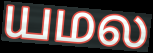
யமல